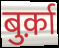
बुर्क़ा